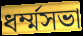
ধর্ম্মসভা